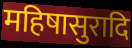
महिषासुरादि